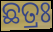
ଛତ୍ରଃ